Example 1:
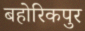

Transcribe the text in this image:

बहोरिकपुर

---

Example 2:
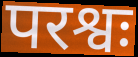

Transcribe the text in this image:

परश्वः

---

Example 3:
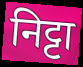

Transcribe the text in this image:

निट्टा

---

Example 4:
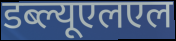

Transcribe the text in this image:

डब्ल्यूएलएल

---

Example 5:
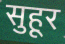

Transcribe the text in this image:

सुहूर